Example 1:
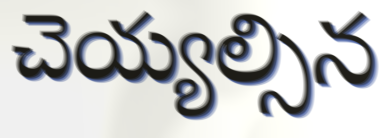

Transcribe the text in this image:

చెయ్యల్సిన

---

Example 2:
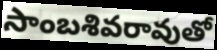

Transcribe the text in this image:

సాంబశివరావుతో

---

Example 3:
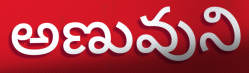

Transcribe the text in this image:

అణువుని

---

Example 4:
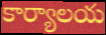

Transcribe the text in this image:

కార్యాలయ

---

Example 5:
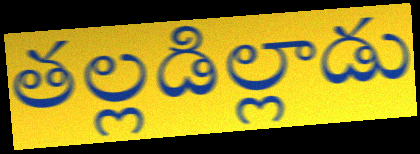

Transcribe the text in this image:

తల్లడిల్లాడు